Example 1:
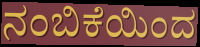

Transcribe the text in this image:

ನಂಬಿಕೆಯಿಂದ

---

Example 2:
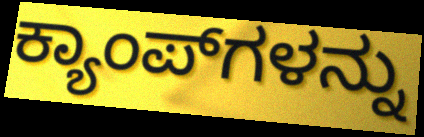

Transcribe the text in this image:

ಕ್ಯಾಂಪ್‍ಗಳನ್ನು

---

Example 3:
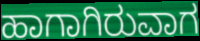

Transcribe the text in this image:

ಹಾಗಾಗಿರುವಾಗ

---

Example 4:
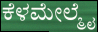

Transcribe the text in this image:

ಕೆಳಮೇಲ್ಮೈ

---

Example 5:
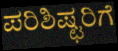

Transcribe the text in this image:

ಪರಿಶಿಷ್ಟರಿಗೆ